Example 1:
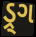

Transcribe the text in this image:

ડ્ર્ગ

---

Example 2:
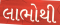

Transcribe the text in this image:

લાભોથી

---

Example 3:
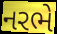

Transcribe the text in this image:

નરભે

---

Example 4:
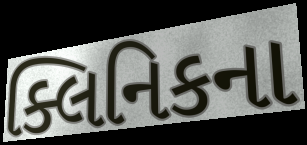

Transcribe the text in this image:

ક્લિનિકના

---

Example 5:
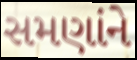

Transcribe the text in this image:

સમણાંને